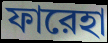
ফারেহা